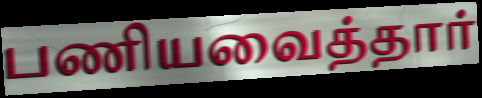
பணியவைத்தார்